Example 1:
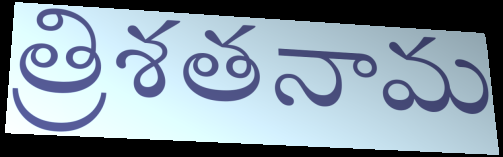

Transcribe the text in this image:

త్రిశతనామ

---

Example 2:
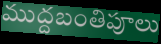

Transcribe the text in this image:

ముద్దబంతిపూలు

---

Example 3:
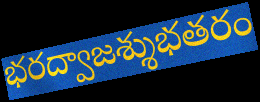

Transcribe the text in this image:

భరద్వాజశ్శుభతరం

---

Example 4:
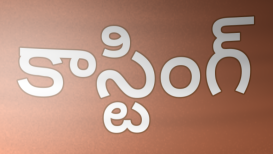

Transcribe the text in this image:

కాస్టింగ్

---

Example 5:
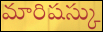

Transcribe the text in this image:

మారిషస్కు